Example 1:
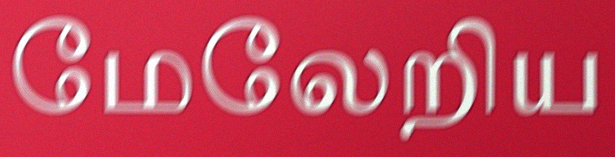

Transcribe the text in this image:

மேலேறிய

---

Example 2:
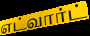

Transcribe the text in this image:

எட்வார்ட்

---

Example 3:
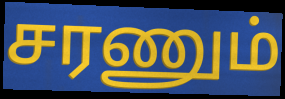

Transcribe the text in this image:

சரணும்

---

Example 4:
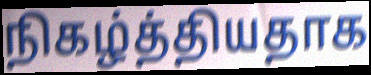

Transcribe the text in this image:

நிகழ்த்தியதாக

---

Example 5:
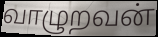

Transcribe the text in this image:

வாழுறவன்